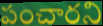
పంచారని